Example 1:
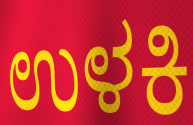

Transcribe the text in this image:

ಉಳಕಿ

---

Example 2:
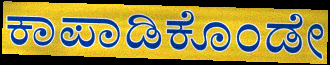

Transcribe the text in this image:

ಕಾಪಾಡಿಕೊಂಡೇ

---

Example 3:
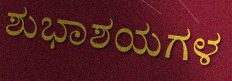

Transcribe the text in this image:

ಶುಭಾಶಯಗಳ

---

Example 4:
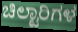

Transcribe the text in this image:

ಚಿಲ್ಟಾರಿಗಳ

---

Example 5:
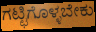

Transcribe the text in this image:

ಗಟ್ಟಿಗೊಳ್ಳಬೇಕು